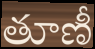
తూణీ